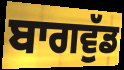
ਬਾਗਵੁੱਡ